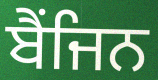
ਬੈਂਜਿਨ